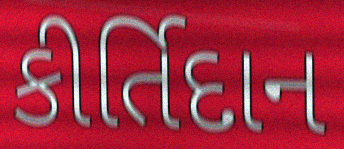
કીર્તિદાન